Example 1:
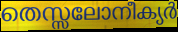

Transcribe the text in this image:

തെസ്സലോനീക്യർ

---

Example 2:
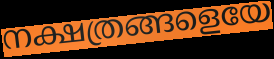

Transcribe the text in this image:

നക്ഷത്രങ്ങളെയേ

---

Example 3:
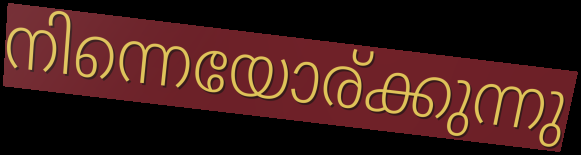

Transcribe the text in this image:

നിന്നെയോര്ക്കുന്നു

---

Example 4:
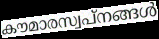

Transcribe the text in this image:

കൗമാരസ്വപ്നങ്ങൾ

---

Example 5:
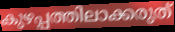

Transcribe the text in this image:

കുഴപ്പത്തിലാക്കരുത്